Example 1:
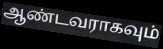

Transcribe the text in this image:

ஆண்டவராகவும்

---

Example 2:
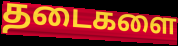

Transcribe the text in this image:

தடைகளை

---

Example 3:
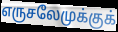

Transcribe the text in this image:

எருசலேமுக்குக்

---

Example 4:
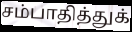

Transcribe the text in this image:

சம்பாதித்துக்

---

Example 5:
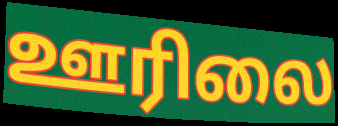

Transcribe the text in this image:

ஊரிலை